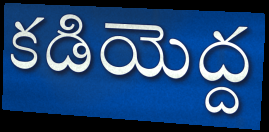
కడియెద్ద